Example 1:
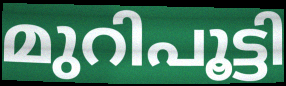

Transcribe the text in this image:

മുറിപൂട്ടി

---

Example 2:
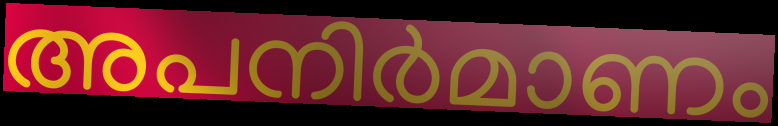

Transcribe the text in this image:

അപനിർമാണം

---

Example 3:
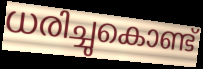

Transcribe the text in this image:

ധരിച്ചുകൊണ്ട്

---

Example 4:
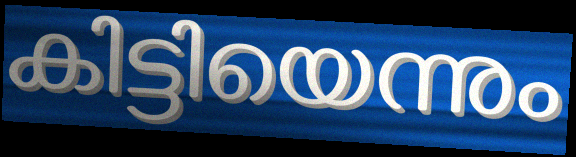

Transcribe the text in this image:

കിട്ടിയെന്നും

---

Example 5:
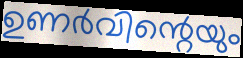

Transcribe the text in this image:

ഉണർവിന്റെയും